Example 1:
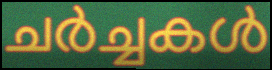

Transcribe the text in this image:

ചർച്ചകൾ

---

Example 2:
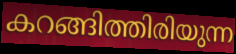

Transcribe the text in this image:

കറങ്ങിത്തിരിയുന്ന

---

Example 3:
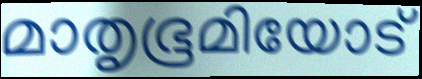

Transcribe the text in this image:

മാതൃഭൂമിയോട്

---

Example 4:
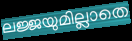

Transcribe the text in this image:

ലജ്ജയുമില്ലാതെ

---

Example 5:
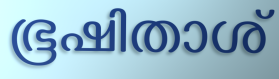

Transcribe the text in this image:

ഭൂഷിതാശ്